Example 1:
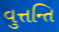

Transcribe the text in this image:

વુત્તન્તિ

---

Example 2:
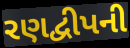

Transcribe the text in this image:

રણદ્વીપની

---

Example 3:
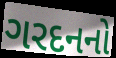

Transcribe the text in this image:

ગરદનનો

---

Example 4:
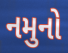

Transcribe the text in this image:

નમુનો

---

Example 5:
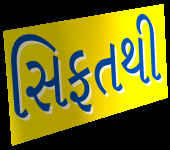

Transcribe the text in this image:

સિફતથી